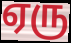
ஏரு